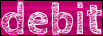
debit